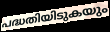
പദ്ധതിയിടുകയും